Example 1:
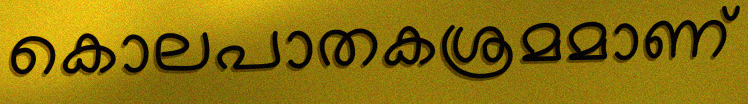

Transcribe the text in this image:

കൊലപാതകശ്രമമാണ്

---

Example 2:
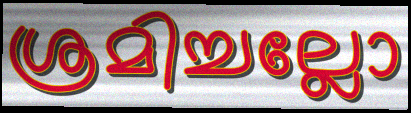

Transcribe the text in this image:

ശ്രമിച്ചല്ലോ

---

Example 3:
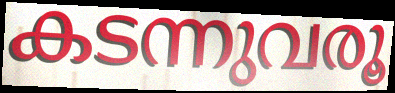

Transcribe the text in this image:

കടന്നുവരൂ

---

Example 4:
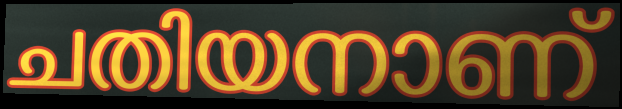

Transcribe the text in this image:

ചതിയനാണ്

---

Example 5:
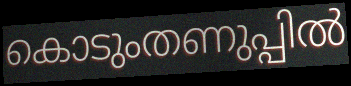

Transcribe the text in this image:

കൊടുംതണുപ്പിൽ